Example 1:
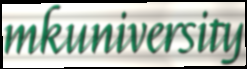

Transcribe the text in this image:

mkuniversity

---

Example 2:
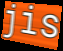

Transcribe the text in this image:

jis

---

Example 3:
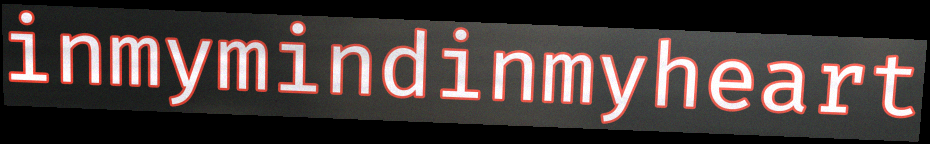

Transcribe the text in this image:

inmymindinmyheart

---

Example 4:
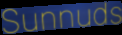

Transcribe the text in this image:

Sunnuds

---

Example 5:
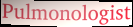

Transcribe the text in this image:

Pulmonologist